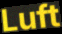
Luft